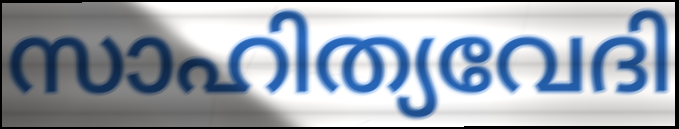
സാഹിത്യവേദി